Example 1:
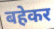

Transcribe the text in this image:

बहेकर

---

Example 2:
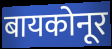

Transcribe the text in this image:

बायकोनूर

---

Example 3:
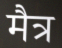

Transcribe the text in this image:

मैत्र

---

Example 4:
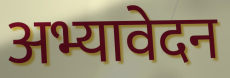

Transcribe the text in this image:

अभ्यावेदन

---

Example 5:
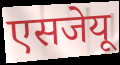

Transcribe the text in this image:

एसजेयू